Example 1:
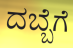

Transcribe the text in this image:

ದಬ್ಬೆಗೆ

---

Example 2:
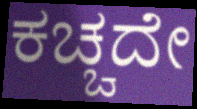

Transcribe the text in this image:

ಕಚ್ಚದೇ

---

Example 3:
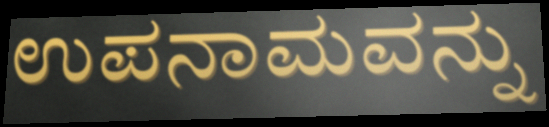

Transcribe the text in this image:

ಉಪನಾಮವನ್ನು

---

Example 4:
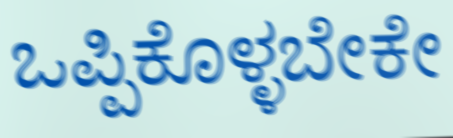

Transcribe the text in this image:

ಒಪ್ಪಿಕೊಳ್ಳಬೇಕೇ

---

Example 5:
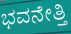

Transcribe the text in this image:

ಭವನೇತ್ತಿ